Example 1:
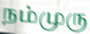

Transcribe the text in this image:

நம்முரு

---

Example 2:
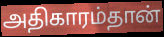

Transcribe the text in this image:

அதிகாரம்தான்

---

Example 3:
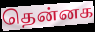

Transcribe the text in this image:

தென்னக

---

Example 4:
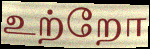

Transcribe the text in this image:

உற்றோ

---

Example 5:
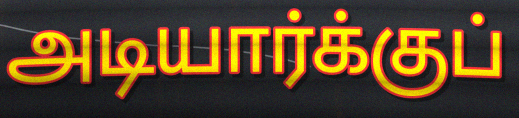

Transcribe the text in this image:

அடியார்க்குப்